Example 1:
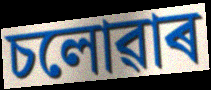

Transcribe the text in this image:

চলোৱাৰ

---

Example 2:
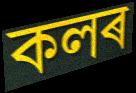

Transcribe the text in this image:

কলৰ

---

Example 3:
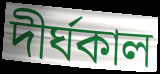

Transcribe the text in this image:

দীৰ্ঘকাল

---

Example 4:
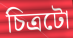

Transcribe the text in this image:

চিত্ৰটো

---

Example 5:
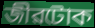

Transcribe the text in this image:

জীৱটোক